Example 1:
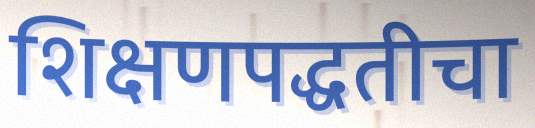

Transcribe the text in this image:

शिक्षणपद्धतीचा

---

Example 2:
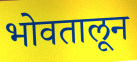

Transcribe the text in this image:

भोवतालून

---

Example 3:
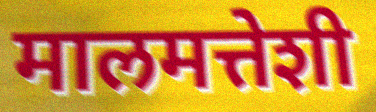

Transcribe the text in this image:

मालमत्तेशी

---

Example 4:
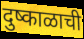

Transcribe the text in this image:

दुष्काळाची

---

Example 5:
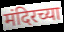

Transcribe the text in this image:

मंदिरच्या